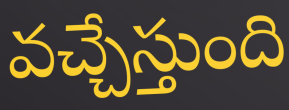
వచ్చేస్తుంది